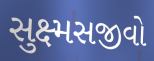
સુક્ષ્મસજીવો